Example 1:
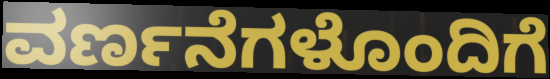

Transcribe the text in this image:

ವರ್ಣನೆಗಳೊಂದಿಗೆ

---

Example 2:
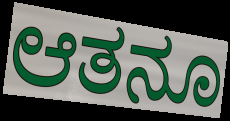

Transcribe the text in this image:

ಆತನೂ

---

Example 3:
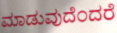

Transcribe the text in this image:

ಮಾಡುವುದೆಂದರೆ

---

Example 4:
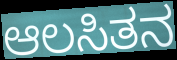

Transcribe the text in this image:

ಆಲಸಿತನ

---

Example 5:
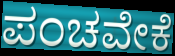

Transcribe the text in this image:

ಪಂಚವೇಕೆ